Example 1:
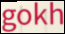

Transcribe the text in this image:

gokh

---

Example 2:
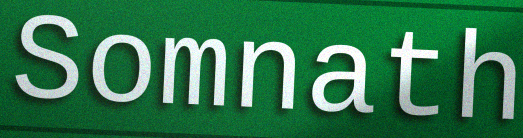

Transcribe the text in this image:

Somnath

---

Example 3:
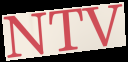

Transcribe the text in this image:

NTV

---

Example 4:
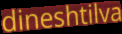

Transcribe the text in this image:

dineshtilva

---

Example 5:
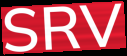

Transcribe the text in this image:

SRV